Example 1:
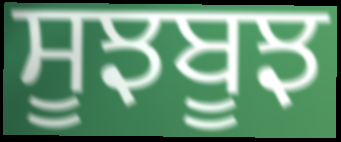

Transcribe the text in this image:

ਸੂਝਬੂਝ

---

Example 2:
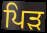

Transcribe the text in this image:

ਪਿੜ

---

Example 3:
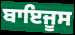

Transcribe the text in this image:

ਬਾਇਜੂਸ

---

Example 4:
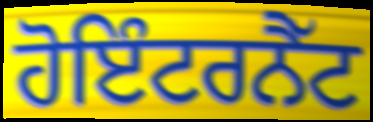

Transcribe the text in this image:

ਹੋਇੰਟਰਨੈੱਟ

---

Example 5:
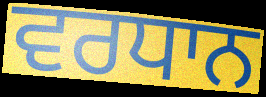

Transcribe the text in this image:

ਵਰਧਾਨ